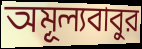
অমূল্যবাবুর